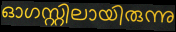
ഓഗസ്റ്റിലായിരുന്നു